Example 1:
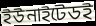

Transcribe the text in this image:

ইউনাইটেডই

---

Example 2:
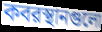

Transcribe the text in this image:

কবরস্থানগুলো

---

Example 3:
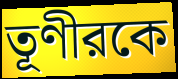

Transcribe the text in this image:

তূণীরকে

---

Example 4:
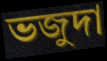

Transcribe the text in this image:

ভজুদা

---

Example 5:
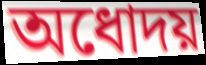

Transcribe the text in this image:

অধোদয়